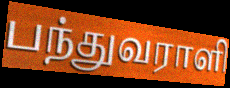
பந்துவராளி